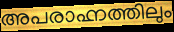
അപരാഹ്നത്തിലും